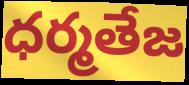
ధర్మతేజ